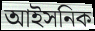
আইসনিক